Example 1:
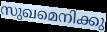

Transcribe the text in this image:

സുഖമെനിക്കു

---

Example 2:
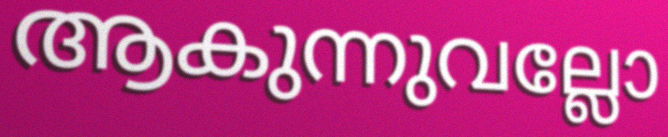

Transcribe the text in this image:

ആകുന്നുവല്ലോ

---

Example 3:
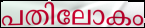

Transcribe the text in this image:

പതിലോകം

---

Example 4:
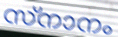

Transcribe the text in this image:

സ്‌നാനം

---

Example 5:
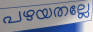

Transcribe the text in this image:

പഴയതല്ലേ